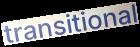
transitional